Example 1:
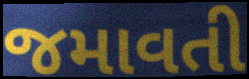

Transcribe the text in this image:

જમાવતી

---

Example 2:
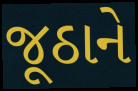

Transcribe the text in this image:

જૂઠાને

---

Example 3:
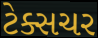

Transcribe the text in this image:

ટેક્સચર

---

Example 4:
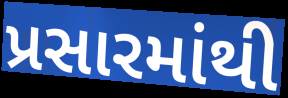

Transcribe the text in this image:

પ્રસારમાંથી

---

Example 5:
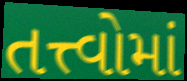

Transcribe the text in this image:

તત્ત્વોમાં